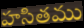
హసితము